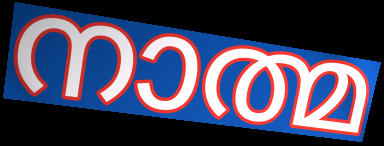
നാത്മ